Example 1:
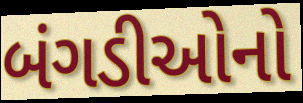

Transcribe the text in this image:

બંગડીઓનો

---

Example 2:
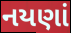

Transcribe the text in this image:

નયણાં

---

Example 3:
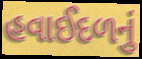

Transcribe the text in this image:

હવાઈદળનું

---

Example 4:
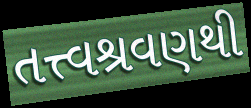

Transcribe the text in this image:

તત્ત્વશ્રવણથી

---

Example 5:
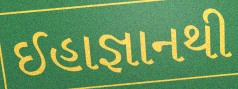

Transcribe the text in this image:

ઈહાજ્ઞાનથી